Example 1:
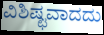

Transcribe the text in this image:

ವಿಶಿಷ್ಟವಾದದು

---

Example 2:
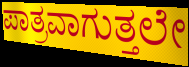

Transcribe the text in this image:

ಪಾತ್ರವಾಗುತ್ತಲೇ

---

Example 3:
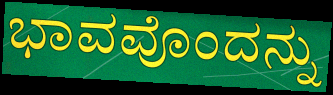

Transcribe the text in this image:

ಭಾವವೊಂದನ್ನು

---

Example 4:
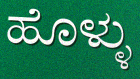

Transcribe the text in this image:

ಹೊಳ್ಳು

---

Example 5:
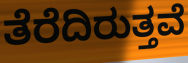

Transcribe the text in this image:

ತೆರೆದಿರುತ್ತವೆ